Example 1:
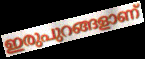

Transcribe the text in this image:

ഇരുപുറങ്ങളാണ്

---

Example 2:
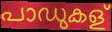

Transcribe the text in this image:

പാഡുകള്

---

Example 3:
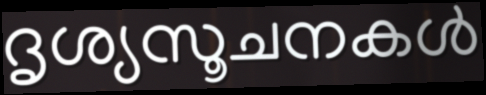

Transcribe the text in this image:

ദൃശ്യസൂചനകൾ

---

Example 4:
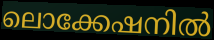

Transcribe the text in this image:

ലൊക്കേഷനിൽ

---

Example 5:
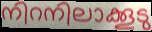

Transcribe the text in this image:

നിറനിലാക്കൂടു